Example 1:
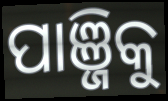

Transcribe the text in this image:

ପାଞ୍ଜିକୁ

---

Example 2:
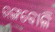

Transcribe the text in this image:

ରଙ୍ଗବୋଳି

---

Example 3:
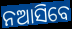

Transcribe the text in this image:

ନଆସିବେ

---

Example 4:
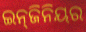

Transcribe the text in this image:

ଇନ୍‌ଜିନିୟର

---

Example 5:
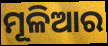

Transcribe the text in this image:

ମୂଳିଆର